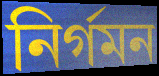
নিৰ্গমন